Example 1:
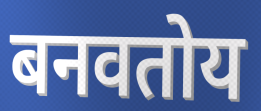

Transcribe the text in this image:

बनवतोय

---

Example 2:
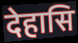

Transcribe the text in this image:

देहासि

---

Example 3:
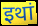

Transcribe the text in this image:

इथां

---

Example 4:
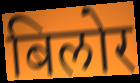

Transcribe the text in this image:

बिलोर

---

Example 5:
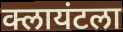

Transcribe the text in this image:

क्लायंटला